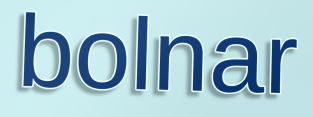
bolnar